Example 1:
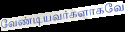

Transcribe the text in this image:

வேண்டியவர்களாகவே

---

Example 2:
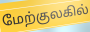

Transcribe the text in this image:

மேற்குலகில்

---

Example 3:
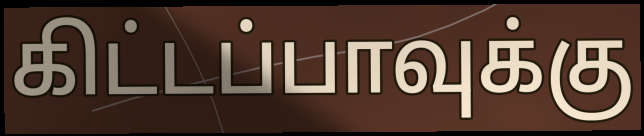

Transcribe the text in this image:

கிட்டப்பாவுக்கு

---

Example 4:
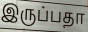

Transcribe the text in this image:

இருப்பதா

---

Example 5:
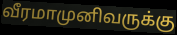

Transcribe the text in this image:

வீரமாமுனிவருக்கு